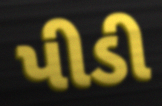
પીડી